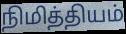
நிமித்தியம்